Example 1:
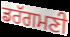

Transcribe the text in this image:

ਡਰੱਗਮਣੀ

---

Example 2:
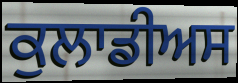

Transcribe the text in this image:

ਕੁਲਾਡੀਅਸ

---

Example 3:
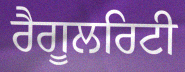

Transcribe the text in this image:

ਰੈਗੂਲਰਿਟੀ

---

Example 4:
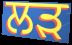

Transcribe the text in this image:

ਲੜ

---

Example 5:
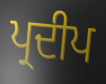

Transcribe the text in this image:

ਪ੍ਰਦੀਪ